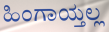
ಹಿಂಗಾಯ್ತಲ್ಲ